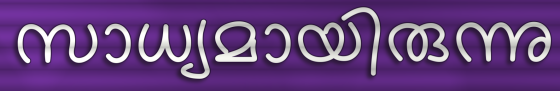
സാധ്യമായിരുന്നു